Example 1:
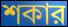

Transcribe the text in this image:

শকার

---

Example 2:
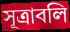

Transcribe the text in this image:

সূত্রাবলি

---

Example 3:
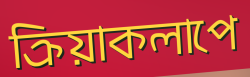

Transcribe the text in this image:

ক্রিয়াকলাপে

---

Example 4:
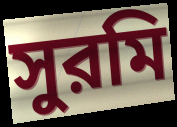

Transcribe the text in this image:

সুরমি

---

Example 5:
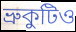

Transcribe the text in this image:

ভ্রুকুটিও